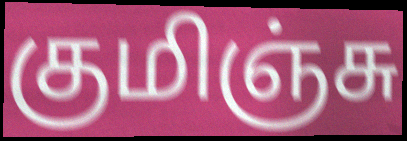
குமிஞ்சு